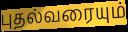
புதல்வரையும்